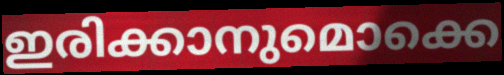
ഇരിക്കാനുമൊക്കെ